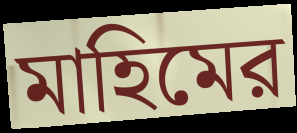
মাহিমের